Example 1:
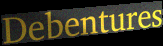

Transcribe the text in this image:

Debentures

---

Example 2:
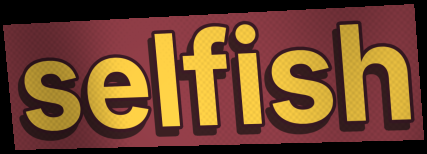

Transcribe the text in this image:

selfish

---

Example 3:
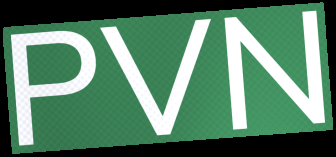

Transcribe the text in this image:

PVN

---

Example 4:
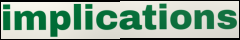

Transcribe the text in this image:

implications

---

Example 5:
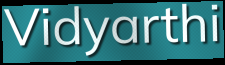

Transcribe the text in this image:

Vidyarthi